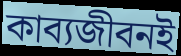
কাব্যজীবনই